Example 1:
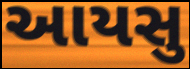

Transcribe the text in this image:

આયસુ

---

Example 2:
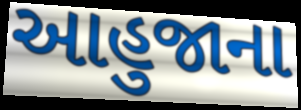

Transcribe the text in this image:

આહુજાના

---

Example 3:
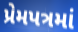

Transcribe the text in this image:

પ્રેમપત્રમાં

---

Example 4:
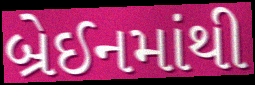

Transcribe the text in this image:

બ્રેઈનમાંથી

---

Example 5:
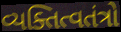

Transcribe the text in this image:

વ્યક્તિત્વતંત્રો